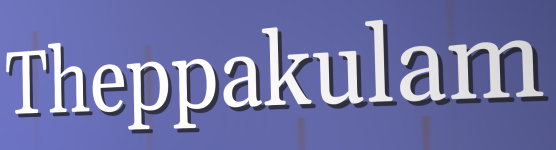
Theppakulam